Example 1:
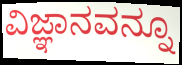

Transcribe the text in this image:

ವಿಜ್ಞಾನವನ್ನೂ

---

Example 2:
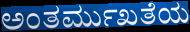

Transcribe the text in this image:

ಅಂತರ್ಮುಖತೆಯ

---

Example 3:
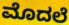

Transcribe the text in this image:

ಮೊದಲೆ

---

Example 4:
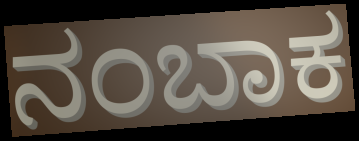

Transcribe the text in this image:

ನಂಬಾಕ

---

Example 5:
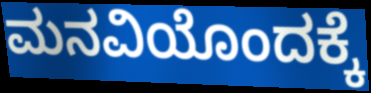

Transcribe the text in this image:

ಮನವಿಯೊಂದಕ್ಕೆ